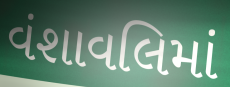
વંશાવલિમાં